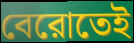
বেরোতেই